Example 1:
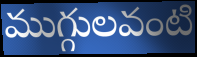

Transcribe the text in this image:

ముగ్గులవంటి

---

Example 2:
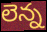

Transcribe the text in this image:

లెన్న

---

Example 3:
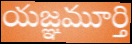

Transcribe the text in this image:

యజ్ఞమూర్తి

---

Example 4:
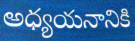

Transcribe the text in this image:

అధ్యయనానికి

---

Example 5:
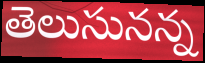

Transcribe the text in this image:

తెలుసునన్న